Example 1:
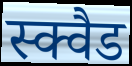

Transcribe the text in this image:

स्क्वैड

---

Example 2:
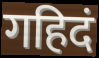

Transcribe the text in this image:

गहिदं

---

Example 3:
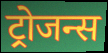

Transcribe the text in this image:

ट्रोजन्स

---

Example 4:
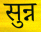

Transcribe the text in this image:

सुन्न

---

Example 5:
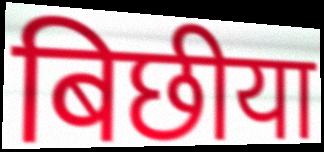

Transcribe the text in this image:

बिछीया